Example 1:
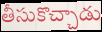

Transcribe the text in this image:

తీసుకొచ్చాడు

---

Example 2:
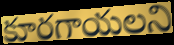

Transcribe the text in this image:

కూరగాయలని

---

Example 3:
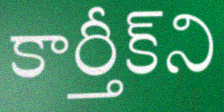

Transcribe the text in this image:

కార్తీక్‌ని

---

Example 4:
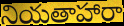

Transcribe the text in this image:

నియతాహారా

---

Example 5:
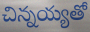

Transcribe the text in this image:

చిన్నయ్యతో